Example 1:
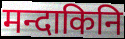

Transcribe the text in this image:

मन्दाकिनि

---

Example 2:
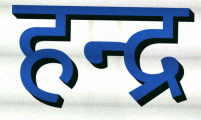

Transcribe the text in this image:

हन्द्र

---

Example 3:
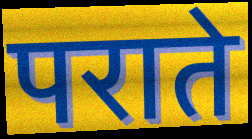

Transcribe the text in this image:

पराते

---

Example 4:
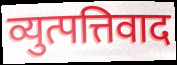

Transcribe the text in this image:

व्युत्पत्तिवाद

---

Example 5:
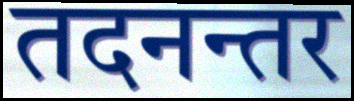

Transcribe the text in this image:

तदनन्तर